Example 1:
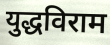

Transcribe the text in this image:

युद्धविराम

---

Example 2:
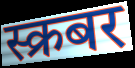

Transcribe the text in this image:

स्‍क्रबर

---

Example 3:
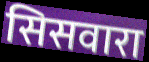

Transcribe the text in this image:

सिसवारा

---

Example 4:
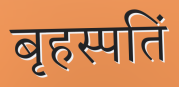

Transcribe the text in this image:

बृहस्पतिं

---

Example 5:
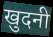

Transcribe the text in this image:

खुदनी